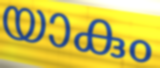
യാകും